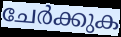
ചേർക്കുക